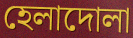
হেলাদোলা